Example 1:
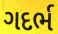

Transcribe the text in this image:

ગદર્ભ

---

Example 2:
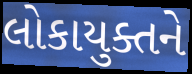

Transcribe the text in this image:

લોકાયુક્તને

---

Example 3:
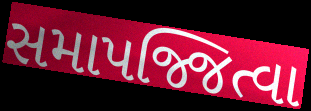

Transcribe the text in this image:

સમાપજ્જિત્વા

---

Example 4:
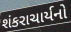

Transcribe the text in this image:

શંકરાચાર્યનો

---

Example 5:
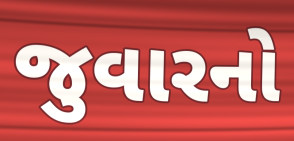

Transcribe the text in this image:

જુવારનો